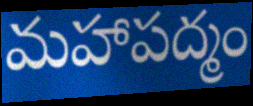
మహాపద్మం